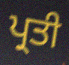
ਪ੍ਰਤੀ